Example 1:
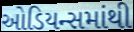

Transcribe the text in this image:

ઓડિયન્સમાંથી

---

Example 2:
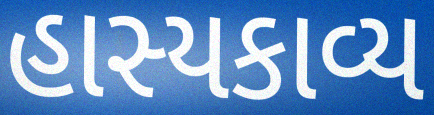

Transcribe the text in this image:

હાસ્યકાવ્ય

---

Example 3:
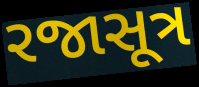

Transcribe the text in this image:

રજાસૂત્ર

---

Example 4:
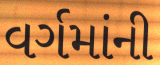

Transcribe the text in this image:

વર્ગમાંની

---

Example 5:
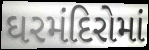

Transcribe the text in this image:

ઘરમંદિરોમાં